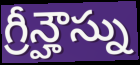
గ్రీన్హౌస్ను